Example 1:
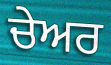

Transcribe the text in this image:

ਚੇਅਰ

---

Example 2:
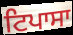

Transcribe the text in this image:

ਟਿਪਾਸਾ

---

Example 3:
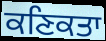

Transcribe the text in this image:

ਕਣਿਕਤਾ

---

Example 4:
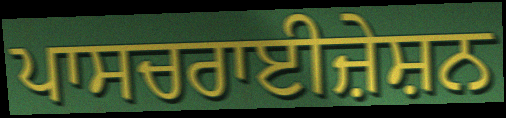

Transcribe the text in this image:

ਪਾਸਚਰਾਈਜ਼ੇਸ਼ਨ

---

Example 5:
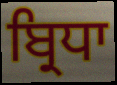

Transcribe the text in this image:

ਬ੍ਰਿਧਾ